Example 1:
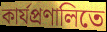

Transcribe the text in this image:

কার্যপ্রণালিতে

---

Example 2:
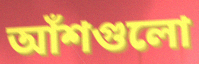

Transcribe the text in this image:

আঁশগুলো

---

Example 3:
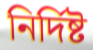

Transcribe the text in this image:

নির্দিষ্ট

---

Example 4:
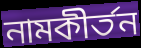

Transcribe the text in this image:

নামকীর্তন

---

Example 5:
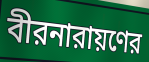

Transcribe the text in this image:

বীরনারায়ণের